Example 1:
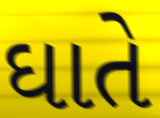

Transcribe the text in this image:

ઘાતે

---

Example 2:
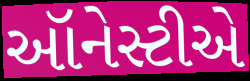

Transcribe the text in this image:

ઑનેસ્ટીએ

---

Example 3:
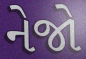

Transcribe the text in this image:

નેજો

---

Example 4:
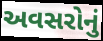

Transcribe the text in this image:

અવસરોનું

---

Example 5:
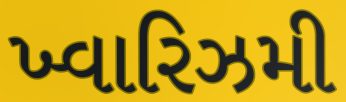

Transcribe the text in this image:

ખ્વારિઝમી